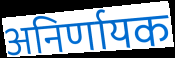
अनिर्णायक